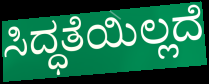
ಸಿದ್ಧತೆಯಿಲ್ಲದೆ